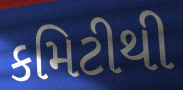
કમિટીથી